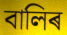
বালিৰ